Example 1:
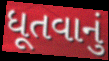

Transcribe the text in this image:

ધૂતવાનું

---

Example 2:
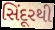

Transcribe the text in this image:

સિંદૂરથી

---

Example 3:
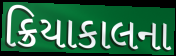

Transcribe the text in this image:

ક્રિયાકાલના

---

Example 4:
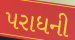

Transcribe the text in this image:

પરાધની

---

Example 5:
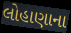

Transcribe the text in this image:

લોહાણાના